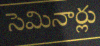
సెమినార్లు